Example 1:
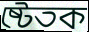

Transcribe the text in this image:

ষ্টেতক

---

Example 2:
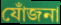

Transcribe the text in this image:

যোঁজনা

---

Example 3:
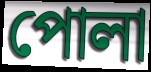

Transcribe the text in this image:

পোলা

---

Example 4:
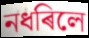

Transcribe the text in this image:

নধৰিলে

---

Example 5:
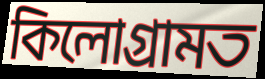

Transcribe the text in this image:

কিলোগ্ৰামত